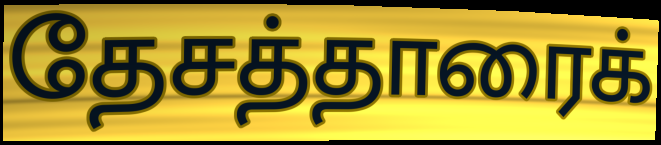
தேசத்தாரைக்